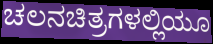
ಚಲನಚಿತ್ರಗಳಲ್ಲಿಯೂ